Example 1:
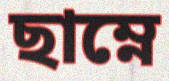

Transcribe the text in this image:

ছাম্নে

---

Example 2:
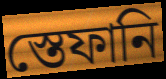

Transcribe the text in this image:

স্তেফানি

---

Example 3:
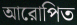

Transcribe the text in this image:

আরোপিত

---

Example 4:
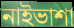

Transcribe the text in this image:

নাইভাশা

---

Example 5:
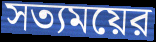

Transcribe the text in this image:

সত্যময়ের